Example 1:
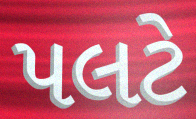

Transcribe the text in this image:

પલટે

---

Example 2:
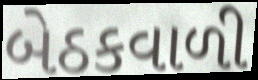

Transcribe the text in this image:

બેઠકવાળી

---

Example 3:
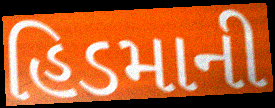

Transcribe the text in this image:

હિડમાની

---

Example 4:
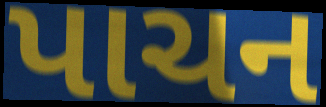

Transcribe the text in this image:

પાચન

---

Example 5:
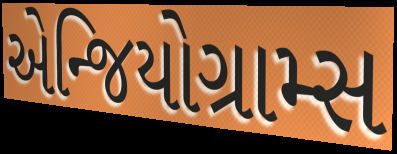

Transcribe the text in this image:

એન્જિયોગ્રામ્સ